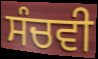
ਸੰਚਵੀ